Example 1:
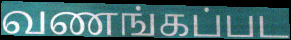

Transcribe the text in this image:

வணங்கப்பட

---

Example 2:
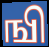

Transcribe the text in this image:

ஙி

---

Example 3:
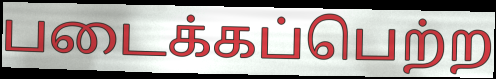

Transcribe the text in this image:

படைக்கப்பெற்ற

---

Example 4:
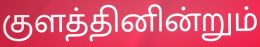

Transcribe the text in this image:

குளத்தினின்றும்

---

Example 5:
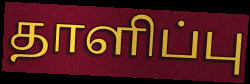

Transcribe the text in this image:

தாளிப்பு